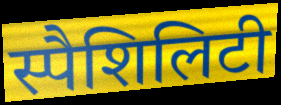
स्पैशिलिटी